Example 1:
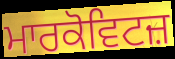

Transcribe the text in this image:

ਮਾਰਕੋਵਿਟਜ਼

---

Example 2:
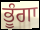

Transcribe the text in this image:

ਭੂੰਗਾ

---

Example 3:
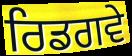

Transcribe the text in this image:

ਰਿਡਗਵੇ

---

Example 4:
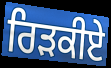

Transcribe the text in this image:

ਰਿੜਕੀਏ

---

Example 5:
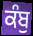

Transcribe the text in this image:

ਕੰਬੁ